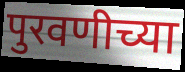
पुरवणीच्या